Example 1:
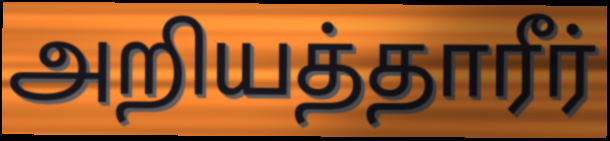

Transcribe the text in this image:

அறியத்தாரீர்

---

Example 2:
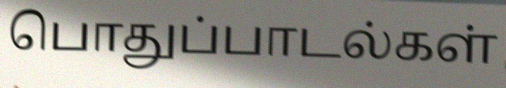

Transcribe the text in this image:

பொதுப்பாடல்கள்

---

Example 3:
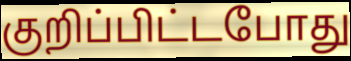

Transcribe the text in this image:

குறிப்பிட்டபோது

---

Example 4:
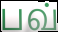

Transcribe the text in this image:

பவ்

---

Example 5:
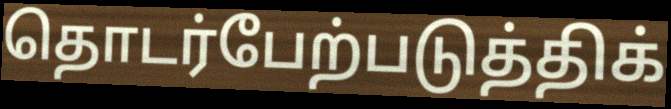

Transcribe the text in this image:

தொடர்பேற்படுத்திக்